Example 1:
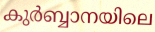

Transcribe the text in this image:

കുർബ്ബാനയിലെ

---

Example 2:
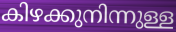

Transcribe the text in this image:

കിഴക്കുനിന്നുള്ള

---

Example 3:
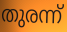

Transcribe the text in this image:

തുരന്ന്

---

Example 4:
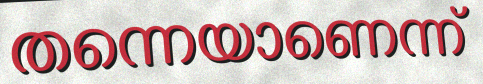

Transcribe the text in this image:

തന്നെയാണെന്ന്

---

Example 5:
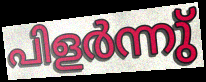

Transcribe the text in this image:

പിളർന്നു്